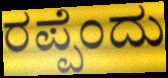
ರಪ್ಪೆಂದು